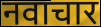
नवाचार